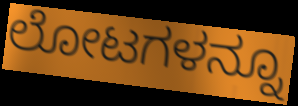
ಲೋಟಗಳನ್ನೂ